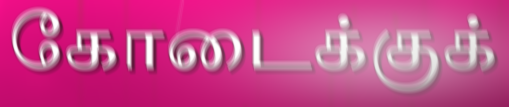
கோடைக்குக்